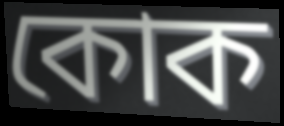
কোক